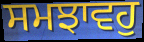
ਸਮਝਾਵਹੁ